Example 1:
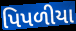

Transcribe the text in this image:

પિપળીયા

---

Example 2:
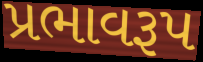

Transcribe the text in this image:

પ્રભાવરૂપ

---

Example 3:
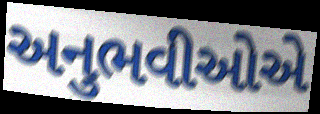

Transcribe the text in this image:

અનુભવીઓએ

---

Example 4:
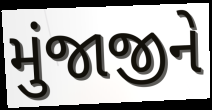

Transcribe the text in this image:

મુંજાજીને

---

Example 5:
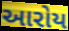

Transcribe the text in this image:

આરોય